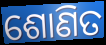
ଶୋଣିତ